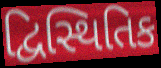
દ્વિસ્થિતિક